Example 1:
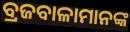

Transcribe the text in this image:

ବ୍ରଜବାଳାମାନଙ୍କ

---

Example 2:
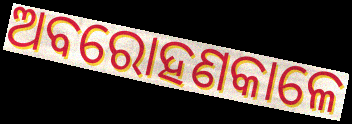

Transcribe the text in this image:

ଅବରୋହଣକାଳେ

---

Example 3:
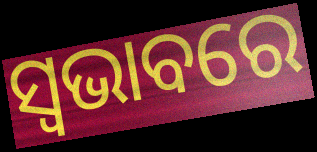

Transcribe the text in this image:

ସ୍ବଭାବରେ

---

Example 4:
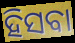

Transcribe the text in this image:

ହିସବା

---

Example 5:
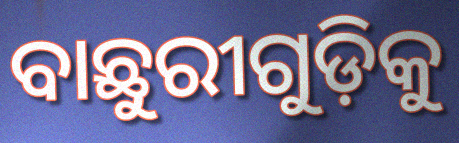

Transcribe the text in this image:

ବାଛୁରୀଗୁଡ଼ିକୁ